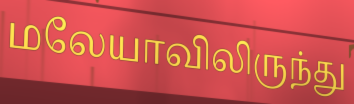
மலேயாவிலிருந்து